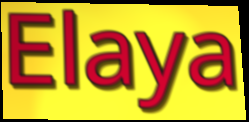
Elaya